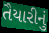
તૈયારીનું